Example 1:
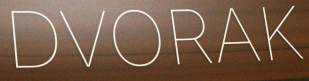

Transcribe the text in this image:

DVORAK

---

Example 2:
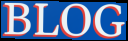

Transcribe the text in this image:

BLOG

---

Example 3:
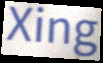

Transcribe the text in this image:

Xing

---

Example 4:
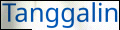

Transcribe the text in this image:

Tanggalin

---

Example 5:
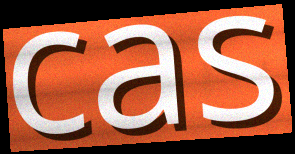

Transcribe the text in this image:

cas